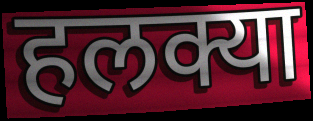
हलक्या